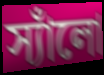
স্যাঁলো